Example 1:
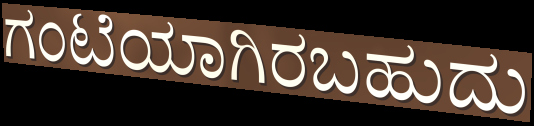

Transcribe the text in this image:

ಗಂಟೆಯಾಗಿರಬಹುದು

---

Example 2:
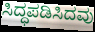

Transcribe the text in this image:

ಸಿದ್ಧಪಡಿಸಿದವು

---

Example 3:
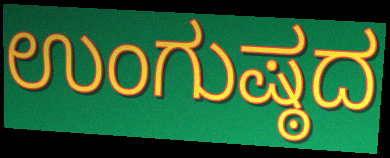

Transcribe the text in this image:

ಉಂಗುಷ್ಠದ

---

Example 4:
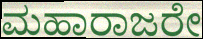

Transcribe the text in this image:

ಮಹಾರಾಜರೇ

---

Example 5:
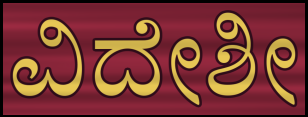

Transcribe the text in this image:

ವಿದೇಶೀ